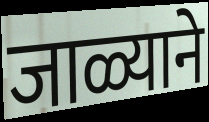
जाळ्याने